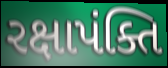
રક્ષાપંક્તિ